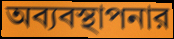
অব্যবস্থাপনার